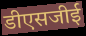
डीएसजीई